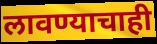
लावण्याचाही